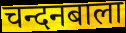
चन्दनबाला